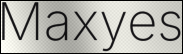
Maxyes